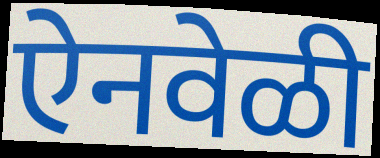
ऐनवेळी